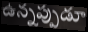
ఉన్నప్పుడూ